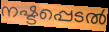
നഷ്ടപ്പെടൽ